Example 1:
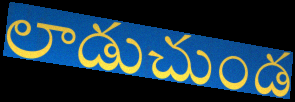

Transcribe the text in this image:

లాడుచుండ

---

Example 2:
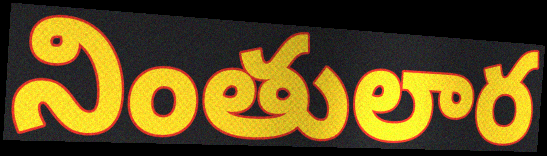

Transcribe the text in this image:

నింతులార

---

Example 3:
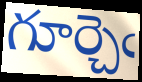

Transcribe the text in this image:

గూర్చెఁ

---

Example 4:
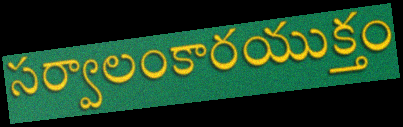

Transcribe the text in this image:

సర్వాలంకారయుక్తం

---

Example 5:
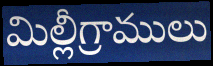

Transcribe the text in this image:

మిల్లీగ్రాములు